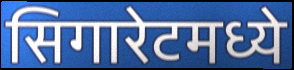
सिगारेटमध्ये